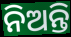
ନିଅନ୍ତି